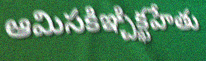
ఆమిసకిఞ్చిక్ఖహేతు